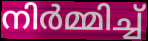
നിർമ്മിച്ച്